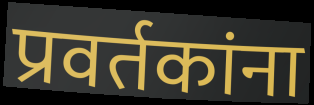
प्रवर्तकांना